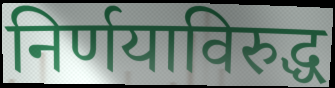
निर्णयाविरुद्ध